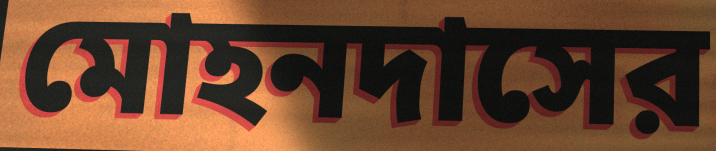
মোহনদাসের